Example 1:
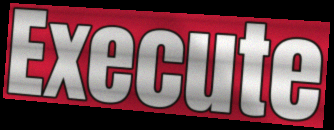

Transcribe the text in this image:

Execute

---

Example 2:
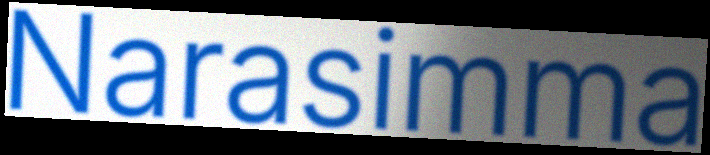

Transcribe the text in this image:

Narasimma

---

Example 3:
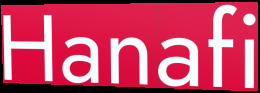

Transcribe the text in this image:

Hanafi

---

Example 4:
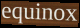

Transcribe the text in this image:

equinox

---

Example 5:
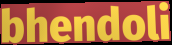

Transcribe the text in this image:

bhendoli